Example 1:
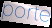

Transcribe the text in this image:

porte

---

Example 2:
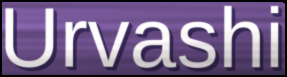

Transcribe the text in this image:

Urvashi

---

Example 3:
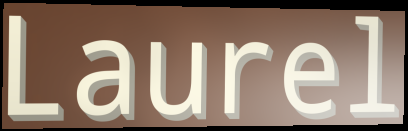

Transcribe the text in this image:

Laurel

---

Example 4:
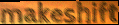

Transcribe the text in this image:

makeshift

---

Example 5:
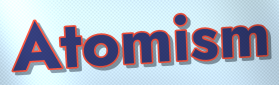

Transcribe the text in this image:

Atomism